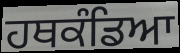
ਹਥਕੰਡਿਆ